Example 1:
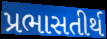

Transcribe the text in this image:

પ્રભાસતીર્થ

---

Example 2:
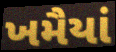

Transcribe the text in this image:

ખમૈયાં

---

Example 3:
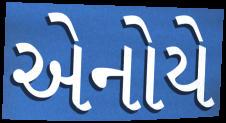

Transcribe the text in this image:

એનોયે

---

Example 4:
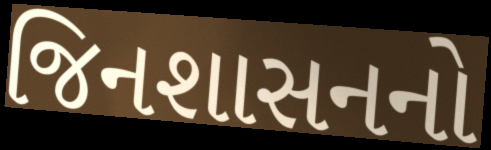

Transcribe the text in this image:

જિનશાસનનો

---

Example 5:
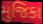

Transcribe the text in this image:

મુજિકા